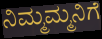
ನಿಮ್ಮಮ್ಮನಿಗೆ